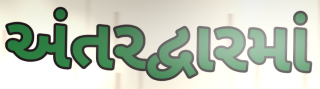
અંતરદ્વારમાં